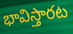
భావిస్తారట